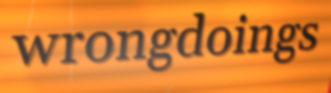
wrongdoings